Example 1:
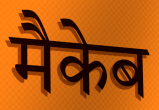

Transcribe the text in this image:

मैकेब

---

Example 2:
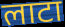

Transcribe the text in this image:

लाटा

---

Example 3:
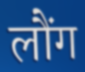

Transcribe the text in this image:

लौंग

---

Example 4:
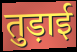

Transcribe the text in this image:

तुड़ाई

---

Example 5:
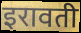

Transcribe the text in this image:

इरावती